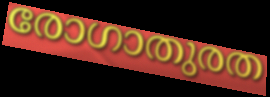
രോഗാതുരത